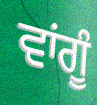
ਵਾਂਗੂੰ